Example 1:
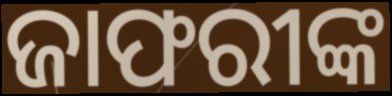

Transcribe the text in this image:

ଜାଫରୀଙ୍କ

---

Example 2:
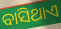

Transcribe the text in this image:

ବାସିଥାଏ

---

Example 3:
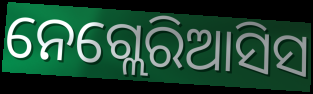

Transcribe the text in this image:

ନେଗ୍ଲେରିଆସିସ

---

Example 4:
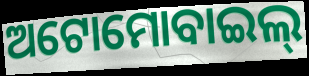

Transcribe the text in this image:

ଅଟୋମୋବାଇଲ୍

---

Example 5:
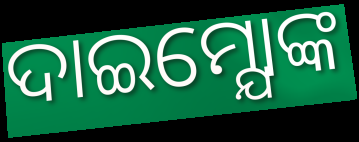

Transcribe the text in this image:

ଦାଇମ୍ଯୋଙ୍କ